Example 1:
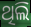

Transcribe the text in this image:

ଥିଲି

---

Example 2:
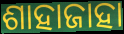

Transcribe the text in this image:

ଶାହାଜାହା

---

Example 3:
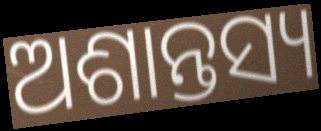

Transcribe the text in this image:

ଅଶାନ୍ତସ୍ୟ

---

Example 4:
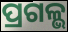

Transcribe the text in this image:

ପ୍ରଗଳ୍ଭ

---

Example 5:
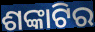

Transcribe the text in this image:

ଶଙ୍କାଟିର